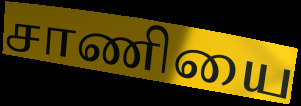
சாணியை